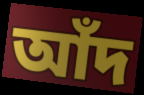
আঁদ